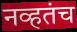
नव्हतंच